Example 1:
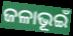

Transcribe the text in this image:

ଜଳାଭୂଇଁ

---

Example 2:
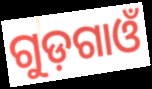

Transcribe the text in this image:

ଗୁଡ଼ଗାଓଁ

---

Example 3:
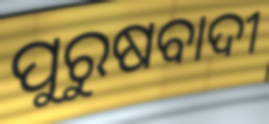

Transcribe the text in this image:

ପୁରୁଷବାଦୀ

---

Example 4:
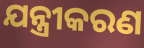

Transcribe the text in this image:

ଯନ୍ତ୍ରୀକରଣ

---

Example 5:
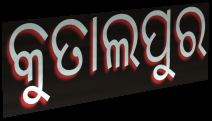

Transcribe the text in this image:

କୁତାଲପୁର